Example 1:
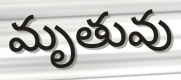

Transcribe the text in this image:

మృతువు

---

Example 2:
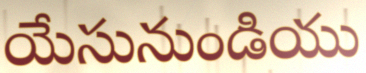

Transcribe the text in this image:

యేసునుండియు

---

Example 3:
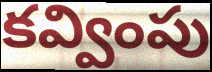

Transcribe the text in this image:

కవ్వింపు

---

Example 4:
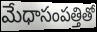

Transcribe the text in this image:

మేధాసంపత్తితో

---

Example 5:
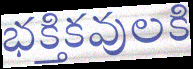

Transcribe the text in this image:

భక్తికవులకి